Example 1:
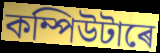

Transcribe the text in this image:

কম্পিউটাৰে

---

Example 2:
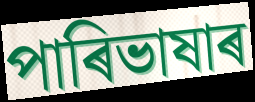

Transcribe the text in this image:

পাৰিভাষাৰ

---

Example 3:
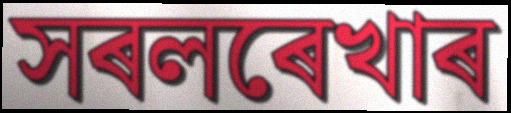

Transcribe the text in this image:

সৰলৰেখাৰ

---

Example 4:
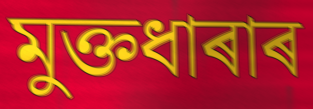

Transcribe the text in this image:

মুক্তধাৰাৰ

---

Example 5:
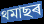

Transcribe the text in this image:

থমাছৰ